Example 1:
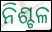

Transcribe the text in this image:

ନିଶ୍ଚଳ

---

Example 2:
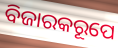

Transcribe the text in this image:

ବିଜାରକରୂପେ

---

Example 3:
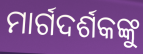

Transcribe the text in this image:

ମାର୍ଗଦର୍ଶକଙ୍କୁ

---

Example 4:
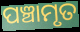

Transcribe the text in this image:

ପଞ୍ଚାମୃତ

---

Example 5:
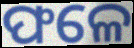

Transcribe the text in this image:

ଫଳେ